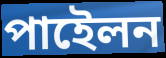
পাইেলন